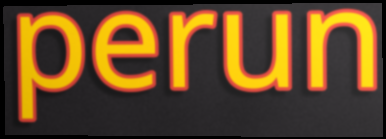
perun